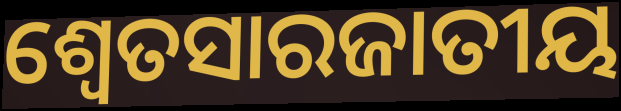
ଶ୍ଵେତସାରଜାତୀୟ